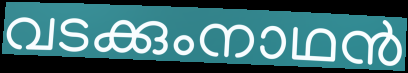
വടക്കുംനാഥൻ